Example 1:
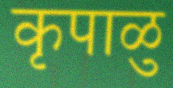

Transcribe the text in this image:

कृपाळु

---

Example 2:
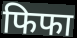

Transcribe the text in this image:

फिफा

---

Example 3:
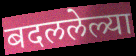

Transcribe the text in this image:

बदललेल्या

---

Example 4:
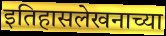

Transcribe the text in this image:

इतिहासलेखनाच्या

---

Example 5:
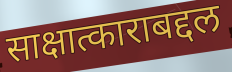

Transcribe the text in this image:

साक्षात्काराबद्दल